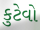
કુટેવો